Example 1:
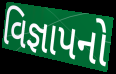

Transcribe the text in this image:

વિજ્ઞાપનો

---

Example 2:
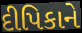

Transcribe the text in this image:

દીપિકાને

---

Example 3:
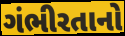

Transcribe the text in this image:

ગંભીરતાનો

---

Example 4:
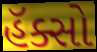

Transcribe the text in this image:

હૅક્સો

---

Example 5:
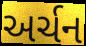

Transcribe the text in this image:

અર્ચન